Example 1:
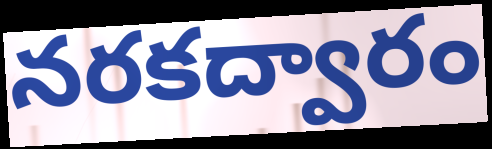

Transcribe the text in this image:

నరకద్వారం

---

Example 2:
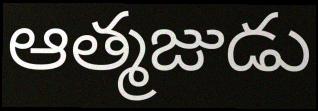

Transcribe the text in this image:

ఆత్మజుడు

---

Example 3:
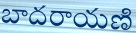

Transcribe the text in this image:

బాదరాయణి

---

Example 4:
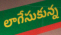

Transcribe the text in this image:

లాగేసుకున్న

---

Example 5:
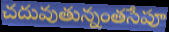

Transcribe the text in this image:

చదువుతున్నంతసేపూ